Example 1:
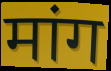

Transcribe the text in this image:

मांग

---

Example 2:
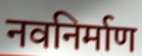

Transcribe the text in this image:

नवनिर्माण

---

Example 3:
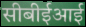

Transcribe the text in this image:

सीबीईआई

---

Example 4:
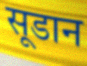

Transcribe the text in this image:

सूडान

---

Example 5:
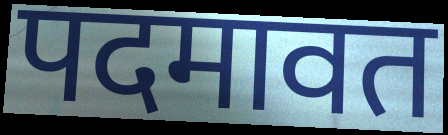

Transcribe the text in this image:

पदमावत